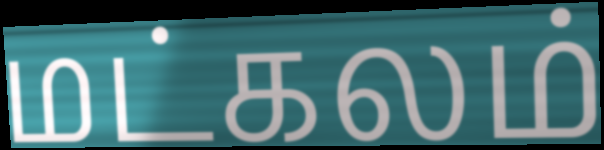
மட்கலம்